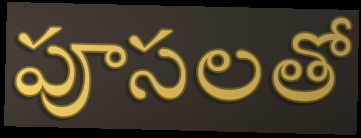
పూసలతో